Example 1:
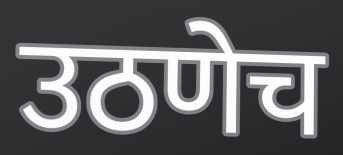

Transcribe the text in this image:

उठणेच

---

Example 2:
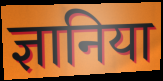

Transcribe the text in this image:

ज्ञानिया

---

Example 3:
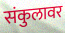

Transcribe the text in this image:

संकुलावर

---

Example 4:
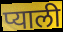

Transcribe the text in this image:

प्याली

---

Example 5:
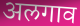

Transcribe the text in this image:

अलगाव